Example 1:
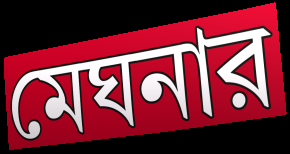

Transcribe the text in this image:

মেঘনার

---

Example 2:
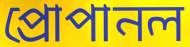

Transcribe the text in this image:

প্রোপানল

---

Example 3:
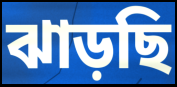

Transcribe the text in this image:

ঝাড়ছি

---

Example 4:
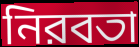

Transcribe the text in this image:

নিরবতা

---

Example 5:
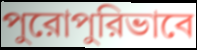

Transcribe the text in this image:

পুরোপুরিভাবে